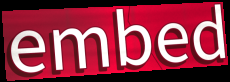
embed